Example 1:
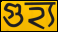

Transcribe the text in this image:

গুহ্য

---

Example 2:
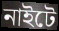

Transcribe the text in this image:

নাইটে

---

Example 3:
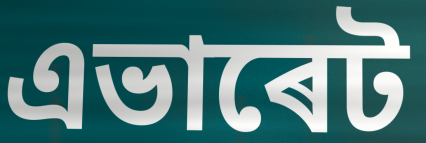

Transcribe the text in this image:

এভাৰেট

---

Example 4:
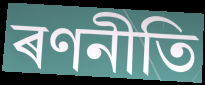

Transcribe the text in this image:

ৰণনীতি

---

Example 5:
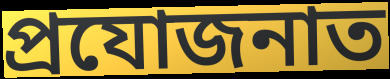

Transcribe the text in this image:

প্ৰযোজনাত